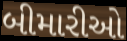
બીમારીઓ